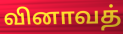
வினாவத்